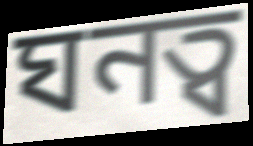
ঘনত্ব